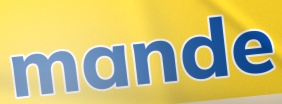
mande